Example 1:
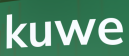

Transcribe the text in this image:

kuwe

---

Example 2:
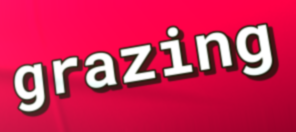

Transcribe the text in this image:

grazing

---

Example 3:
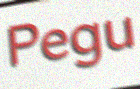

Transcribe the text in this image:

Pegu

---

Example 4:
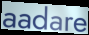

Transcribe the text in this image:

aadare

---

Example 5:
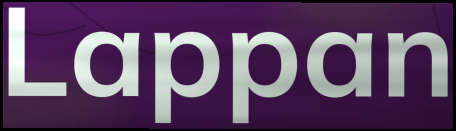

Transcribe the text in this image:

Lappan